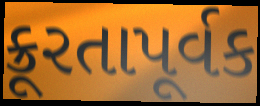
ક્રૂરતાપૂર્વક